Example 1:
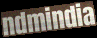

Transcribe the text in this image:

ndmindia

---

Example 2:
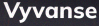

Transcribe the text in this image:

Vyvanse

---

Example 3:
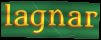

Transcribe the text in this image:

lagnar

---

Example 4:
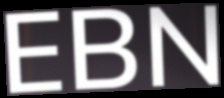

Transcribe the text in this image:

EBN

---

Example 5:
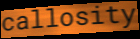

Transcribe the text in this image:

callosity